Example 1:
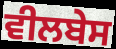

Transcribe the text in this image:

ਵੀਲਬੇਸ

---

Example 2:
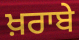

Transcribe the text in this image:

ਖ਼ਰਾਬੇ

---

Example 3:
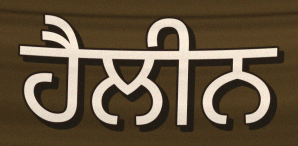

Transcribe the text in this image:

ਹੈਲੀਨ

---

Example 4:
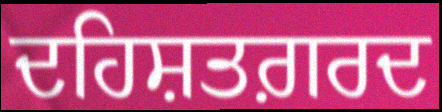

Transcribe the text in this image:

ਦਹਿਸ਼ਤਗ਼ਰਦ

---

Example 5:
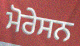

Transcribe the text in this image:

ਮੋਰੇਸਨ